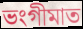
ভংগীমাত